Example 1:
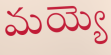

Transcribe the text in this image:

మయ్యె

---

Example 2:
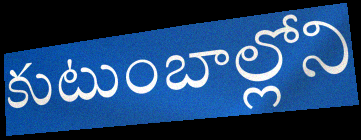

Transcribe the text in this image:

కుటుంబాల్లోని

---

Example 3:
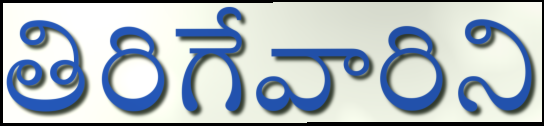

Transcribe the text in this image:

తిరిగేవారిని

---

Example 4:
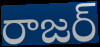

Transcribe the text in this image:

రాజర్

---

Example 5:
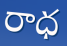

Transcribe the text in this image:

రాధ